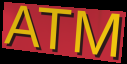
ATM